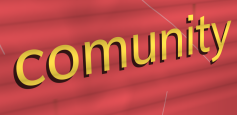
comunity